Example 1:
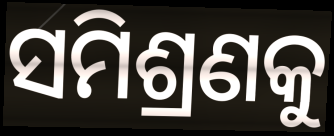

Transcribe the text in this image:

ସମିଶ୍ରଣକୁ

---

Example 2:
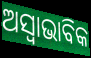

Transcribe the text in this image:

ଅସ୍ଵାଭାବିକ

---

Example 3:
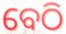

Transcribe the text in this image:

ବେଠି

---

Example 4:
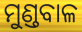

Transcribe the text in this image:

ମୁଣ୍ଡବାଳ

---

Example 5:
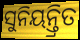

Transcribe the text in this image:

ସୁନିୟନ୍ତ୍ରିତ